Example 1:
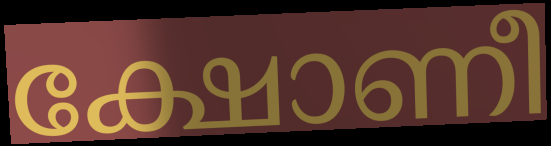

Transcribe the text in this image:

ക്ഷോണീ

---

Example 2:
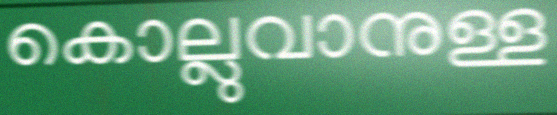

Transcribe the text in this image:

കൊല്ലുവാനുള്ള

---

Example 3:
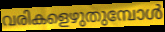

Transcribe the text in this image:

വരികളെഴുതുമ്പോൾ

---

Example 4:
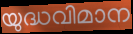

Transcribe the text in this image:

യുദ്ധവിമാന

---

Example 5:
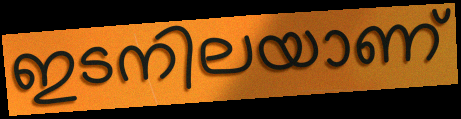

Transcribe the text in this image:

ഇടനിലയാണ്